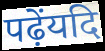
पढ़ेंयदि